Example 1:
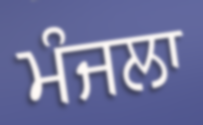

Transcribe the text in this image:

ਮੰਜਲਾ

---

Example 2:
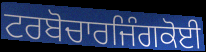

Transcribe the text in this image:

ਟਰਬੋਚਾਰਜਿੰਗਕੋਈ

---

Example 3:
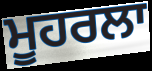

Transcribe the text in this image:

ਮੂਹਰਲਾ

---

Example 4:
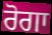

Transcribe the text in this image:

ਰੋਗਾ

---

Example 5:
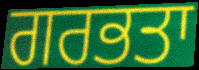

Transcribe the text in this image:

ਗਰਭਤਾ